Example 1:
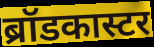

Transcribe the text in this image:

ब्रॉडकास्टर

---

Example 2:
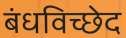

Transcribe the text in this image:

बंधविच्छेद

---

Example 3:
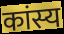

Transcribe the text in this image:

कांस्‍य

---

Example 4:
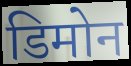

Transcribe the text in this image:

डिमोन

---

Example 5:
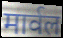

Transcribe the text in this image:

मार्वल